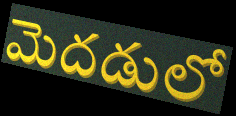
మెదడులో